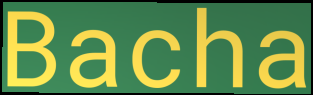
Bacha